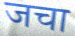
जचा